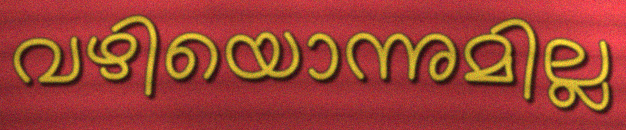
വഴിയൊന്നുമില്ല